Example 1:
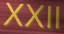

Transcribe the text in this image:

XXII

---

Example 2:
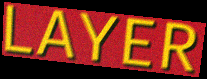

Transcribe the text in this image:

LAYER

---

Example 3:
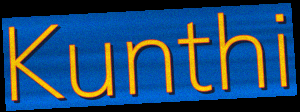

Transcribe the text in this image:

Kunthi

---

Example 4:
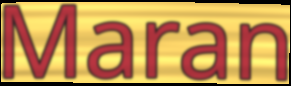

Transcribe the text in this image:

Maran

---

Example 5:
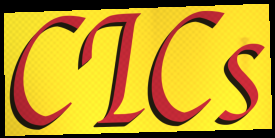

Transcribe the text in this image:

CICs